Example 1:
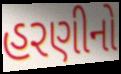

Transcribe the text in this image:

હરણીનો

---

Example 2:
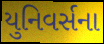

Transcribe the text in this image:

યુનિવર્સના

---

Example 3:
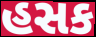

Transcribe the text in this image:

હસક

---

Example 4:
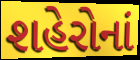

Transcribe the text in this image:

શહેરોનાં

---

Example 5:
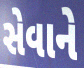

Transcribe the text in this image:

સેવાને